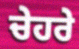
ਚੇਹਰੇ